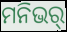
ମନିଭର୍